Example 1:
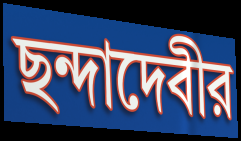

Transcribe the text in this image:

ছন্দাদেবীর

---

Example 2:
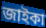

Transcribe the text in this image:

জাইকা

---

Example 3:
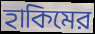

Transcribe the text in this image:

হাকিমের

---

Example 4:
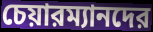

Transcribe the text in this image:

চেয়ারম্যানদের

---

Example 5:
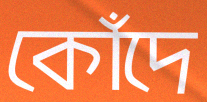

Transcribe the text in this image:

কোঁদে